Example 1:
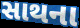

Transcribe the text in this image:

સાથના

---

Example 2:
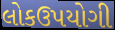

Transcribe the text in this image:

લોકઉપયોગી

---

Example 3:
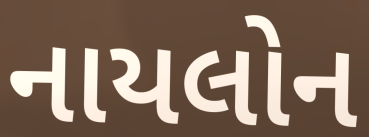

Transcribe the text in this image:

નાયલોન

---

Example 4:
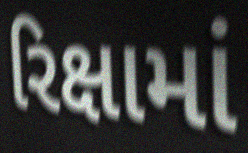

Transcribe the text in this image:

રિક્ષામાં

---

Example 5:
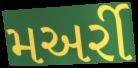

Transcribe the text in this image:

મઅર્રી